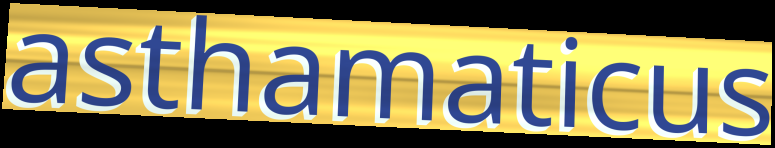
asthamaticus